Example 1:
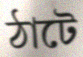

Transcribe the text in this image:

ঠাটে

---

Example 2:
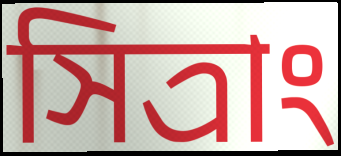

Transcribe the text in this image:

সিত্রাং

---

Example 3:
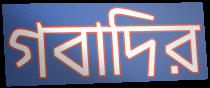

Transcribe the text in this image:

গবাদির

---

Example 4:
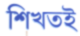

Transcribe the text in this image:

শিখতই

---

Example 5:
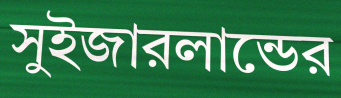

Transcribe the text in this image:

সুইজারলান্ডের